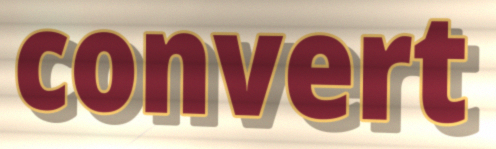
convert